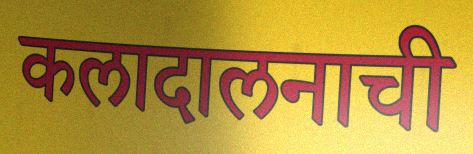
कलादालनाची